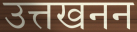
उत्तखनन